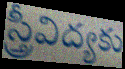
స్త్రీవిద్యకు